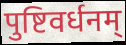
पुष्टिवर्धनम्